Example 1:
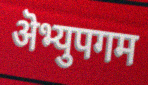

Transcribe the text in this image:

ऄभ्युपगम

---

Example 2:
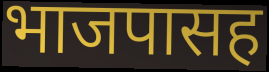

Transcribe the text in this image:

भाजपासह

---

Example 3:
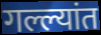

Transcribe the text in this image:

गल्ल्यांत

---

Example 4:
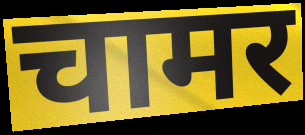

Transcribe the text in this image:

चामर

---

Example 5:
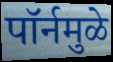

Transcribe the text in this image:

पॉर्नमुळे